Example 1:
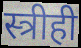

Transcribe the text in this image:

स्त्रीही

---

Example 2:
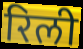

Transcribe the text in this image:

रिली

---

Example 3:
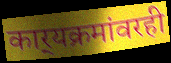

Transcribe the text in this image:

कार्यक्रमांवरही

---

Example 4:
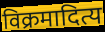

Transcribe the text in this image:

विक्रमादित्य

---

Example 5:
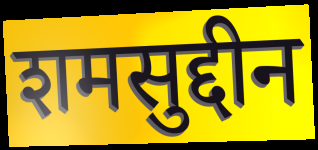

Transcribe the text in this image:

शमसुद्दीन